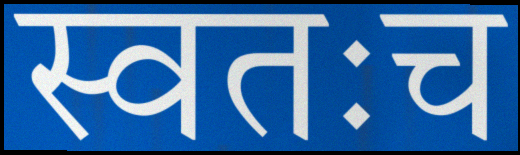
स्वतःच